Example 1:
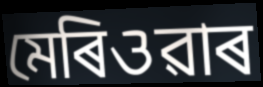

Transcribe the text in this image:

মেৰিওৱাৰ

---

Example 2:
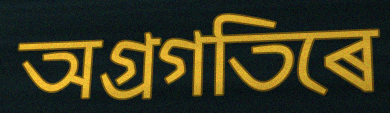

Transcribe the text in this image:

অগ্ৰগতিৰে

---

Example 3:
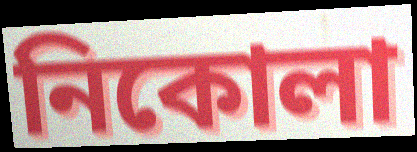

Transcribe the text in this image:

নিকোলা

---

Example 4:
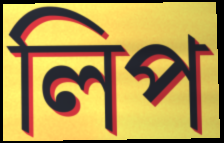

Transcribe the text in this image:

লিপ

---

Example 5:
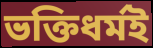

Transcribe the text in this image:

ভক্তিধৰ্মই